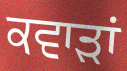
ਕਵਾੜਾਂ